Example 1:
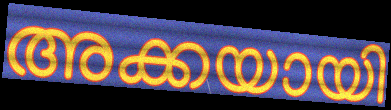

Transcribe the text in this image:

അക്കയായി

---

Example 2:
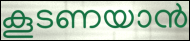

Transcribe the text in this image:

കൂടണയാൻ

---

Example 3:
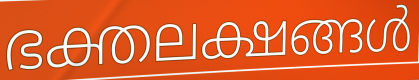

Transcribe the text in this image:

ഭക്തലക്ഷങ്ങൾ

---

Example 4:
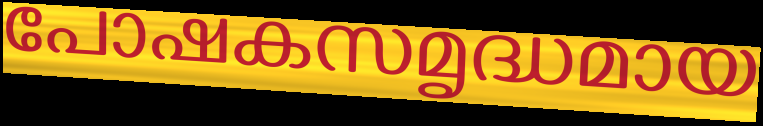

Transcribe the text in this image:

പോഷകസമൃദ്ധമായ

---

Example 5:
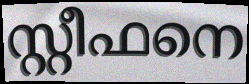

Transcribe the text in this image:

സ്റ്റീഫനെ